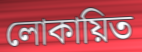
লোকায়িত